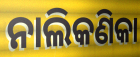
ନାଲିକଣିକା